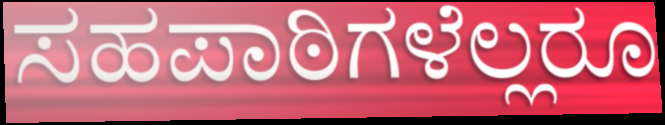
ಸಹಪಾಠಿಗಳೆಲ್ಲರೂ